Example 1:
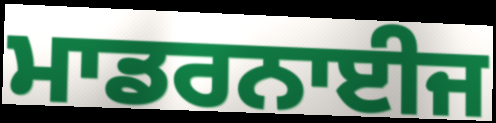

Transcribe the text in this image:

ਮਾਡਰਨਾਈਜ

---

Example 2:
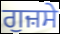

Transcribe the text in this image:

ਗੁਜ਼ਸੇ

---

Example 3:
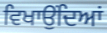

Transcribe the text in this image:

ਵਿਖਾਉਂਦਿਆਂ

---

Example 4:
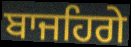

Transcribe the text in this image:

ਬਾਜਹਿਗੇ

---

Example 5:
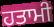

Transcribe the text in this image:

ਹਤਾਮੀ